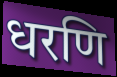
धरणि